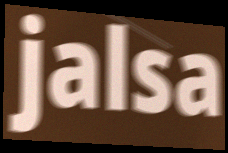
jalsa